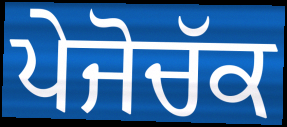
ਪੇਜੋਚੱਕ